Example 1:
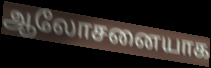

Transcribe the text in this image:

ஆலோசனையாக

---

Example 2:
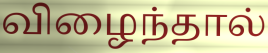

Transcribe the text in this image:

விழைந்தால்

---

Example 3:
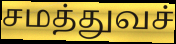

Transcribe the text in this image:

சமத்துவச்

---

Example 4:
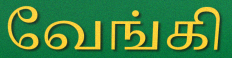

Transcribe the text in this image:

வேங்கி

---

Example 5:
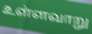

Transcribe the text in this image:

உள்ளவாறு